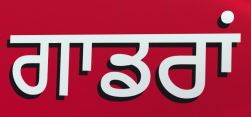
ਗਾਡਰਾਂ